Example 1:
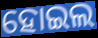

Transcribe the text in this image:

ହୋଇଲ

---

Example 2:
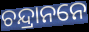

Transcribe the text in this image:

ଚନ୍ଦ୍ରାନନେ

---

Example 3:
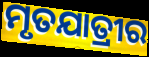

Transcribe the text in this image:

ମୃତଯାତ୍ରୀର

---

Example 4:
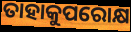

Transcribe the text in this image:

ତାହାକୁପରୋକ୍ଷ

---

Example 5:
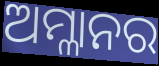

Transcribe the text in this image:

ଅମ୍ଳାନର